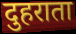
दुहराता